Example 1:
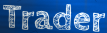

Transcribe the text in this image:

Trader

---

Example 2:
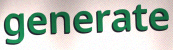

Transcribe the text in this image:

generate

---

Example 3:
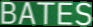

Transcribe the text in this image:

BATES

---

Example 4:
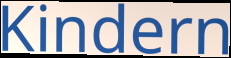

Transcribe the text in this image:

Kindern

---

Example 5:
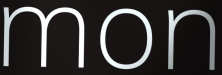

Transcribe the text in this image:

mon